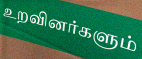
உறவினர்களும்